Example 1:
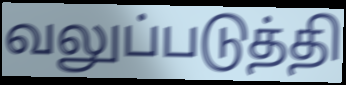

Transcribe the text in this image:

வலுப்படுத்தி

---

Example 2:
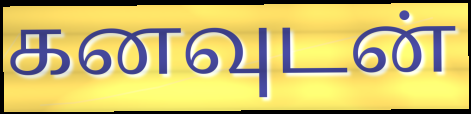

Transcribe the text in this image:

கனவுடன்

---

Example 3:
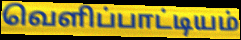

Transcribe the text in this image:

வெளிப்பாட்டியம்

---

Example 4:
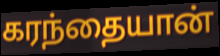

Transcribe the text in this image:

கரந்தையான்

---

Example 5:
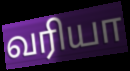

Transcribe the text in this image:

வரியா